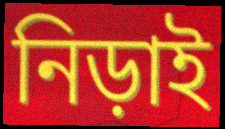
নিড়াই